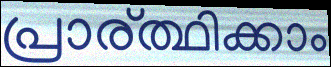
പ്രാര്ത്ഥിക്കാം